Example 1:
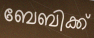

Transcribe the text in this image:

ബേബിക്ക്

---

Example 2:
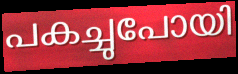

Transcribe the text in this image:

പകച്ചുപോയി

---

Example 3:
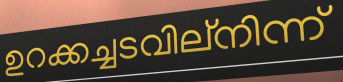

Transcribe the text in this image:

ഉറക്കച്ചടവില്നിന്ന്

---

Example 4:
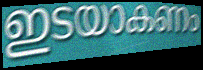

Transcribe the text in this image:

ഇടയാകണം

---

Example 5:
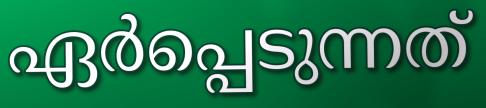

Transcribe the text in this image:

ഏർപ്പെടുന്നത്